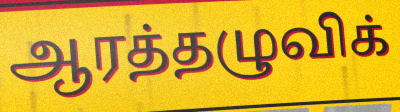
ஆரத்தழுவிக்